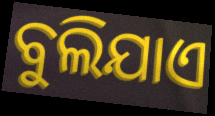
ବୁଲିଯାଏ